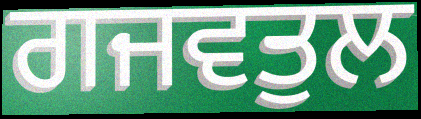
ਗਜਵਤੁਲ